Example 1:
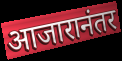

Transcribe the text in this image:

आजारानंतर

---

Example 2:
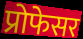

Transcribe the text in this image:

प्रोफेसर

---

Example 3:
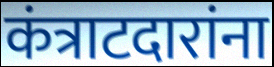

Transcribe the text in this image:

कंत्राटदारांना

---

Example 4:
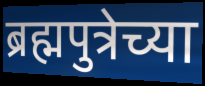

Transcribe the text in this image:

ब्रह्मपुत्रेच्या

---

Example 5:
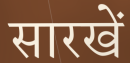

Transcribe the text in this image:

सारखें